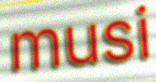
musi